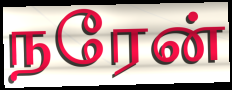
நரேன்